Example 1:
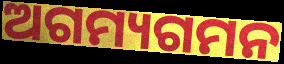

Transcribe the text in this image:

ଅଗମ୍ୟଗମନ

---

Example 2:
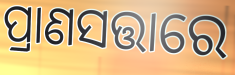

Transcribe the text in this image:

ପ୍ରାଣସତ୍ତାରେ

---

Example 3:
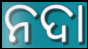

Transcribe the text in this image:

ନଦା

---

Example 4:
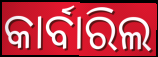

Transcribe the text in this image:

କାର୍ବାରିଲ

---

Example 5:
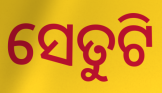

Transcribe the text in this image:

ସେତୁଟି